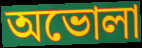
অভোলা